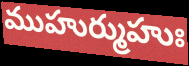
ముహుర్ముహుః